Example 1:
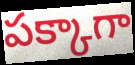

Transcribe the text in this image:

పక్కాగా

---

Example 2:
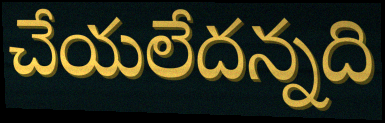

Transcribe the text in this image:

చేయలేదన్నది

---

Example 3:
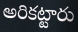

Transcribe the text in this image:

అరికట్టారు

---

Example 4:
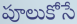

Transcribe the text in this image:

పూలుకోసే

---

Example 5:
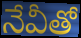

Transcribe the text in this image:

నేవీతో